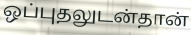
ஒப்புதலுடன்தான்